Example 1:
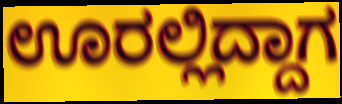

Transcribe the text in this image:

ಊರಲ್ಲಿದ್ದಾಗ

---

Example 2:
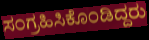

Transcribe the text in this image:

ಸಂಗ್ರಹಿಸಿಕೊಂಡಿದ್ದರು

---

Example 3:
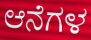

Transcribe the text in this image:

ಆನೆಗಳ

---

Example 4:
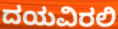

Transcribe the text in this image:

ದಯವಿರಲಿ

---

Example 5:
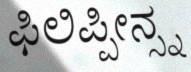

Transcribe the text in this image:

ಫಿಲಿಪ್ಪೀನ್ಸ್ನ